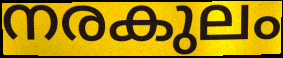
നരകുലം